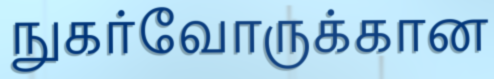
நுகர்வோருக்கான